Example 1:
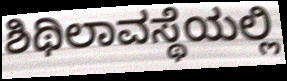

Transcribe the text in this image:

ಶಿಥಿಲಾವಸ್ಥೆಯಲ್ಲಿ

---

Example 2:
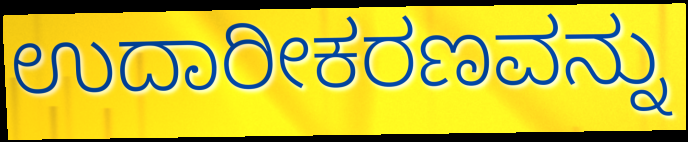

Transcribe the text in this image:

ಉದಾರೀಕರಣವನ್ನು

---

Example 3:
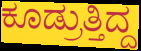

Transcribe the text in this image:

ಕೂಡ್ರುತ್ತಿದ್ದ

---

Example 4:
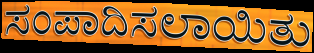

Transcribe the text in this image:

ಸಂಪಾದಿಸಲಾಯಿತು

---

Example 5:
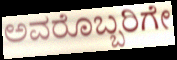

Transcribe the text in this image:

ಅವರೊಬ್ಬರಿಗೇ